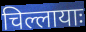
चिल्लायाः